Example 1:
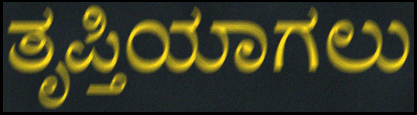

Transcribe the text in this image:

ತೃಪ್ತಿಯಾಗಲು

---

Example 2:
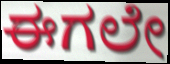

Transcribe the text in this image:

ಈಗಲೇ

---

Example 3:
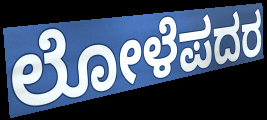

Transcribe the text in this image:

ಲೋಳೆಪದರ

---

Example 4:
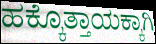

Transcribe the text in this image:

ಹಕ್ಕೊತ್ತಾಯಕ್ಕಾಗಿ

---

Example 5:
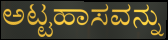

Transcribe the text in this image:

ಅಟ್ಟಹಾಸವನ್ನು